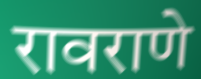
रावराणे